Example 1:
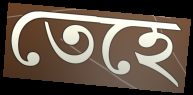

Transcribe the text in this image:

তেহে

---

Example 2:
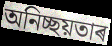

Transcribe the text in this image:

অনিচ্ছয়তাৰ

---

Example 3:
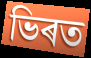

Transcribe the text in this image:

ভিৰত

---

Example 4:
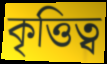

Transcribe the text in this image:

কৃত্তিত্ব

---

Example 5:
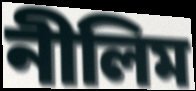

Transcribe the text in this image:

নীলিম